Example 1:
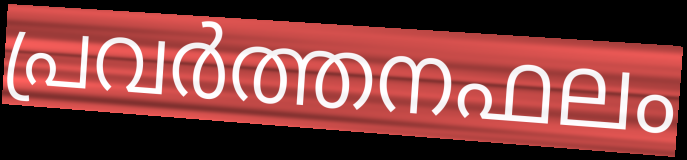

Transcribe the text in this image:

പ്രവർത്തനഫലം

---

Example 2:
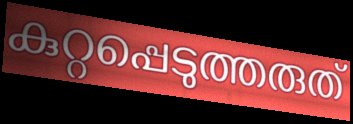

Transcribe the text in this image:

കുറ്റപ്പെടുത്തരുത്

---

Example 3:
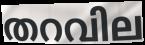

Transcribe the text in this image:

തറവില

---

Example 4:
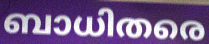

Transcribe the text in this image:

ബാധിതരെ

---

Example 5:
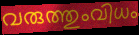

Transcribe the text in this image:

വരുത്തുംവിധം